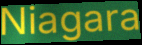
Niagara